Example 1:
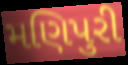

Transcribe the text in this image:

મણિપુરી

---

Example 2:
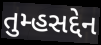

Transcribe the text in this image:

તુમ્હસદ્દેન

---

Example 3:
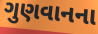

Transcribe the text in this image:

ગુણવાનના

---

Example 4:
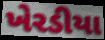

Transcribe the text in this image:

ખેરડીયા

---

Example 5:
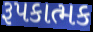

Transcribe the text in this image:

રૂપકાત્મક